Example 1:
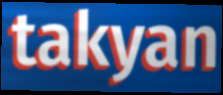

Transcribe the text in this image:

takyan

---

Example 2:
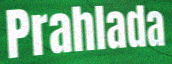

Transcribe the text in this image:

Prahlada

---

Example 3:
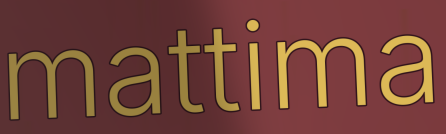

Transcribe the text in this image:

mattima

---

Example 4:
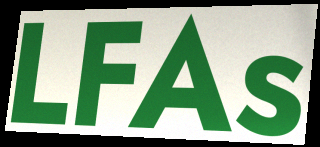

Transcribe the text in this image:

LFAs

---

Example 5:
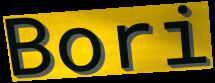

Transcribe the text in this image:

Bori